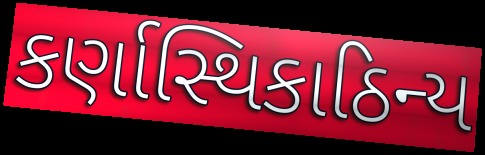
કર્ણાસ્થિકાઠિન્ય